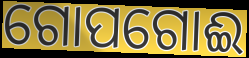
ଗୋପଗୋଈ